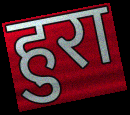
हुरा